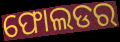
ଫୋଲଡର